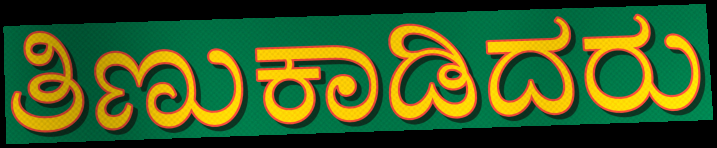
ತಿಣುಕಾಡಿದರು